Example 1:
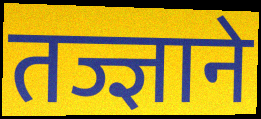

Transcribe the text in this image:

तज्ज्ञाने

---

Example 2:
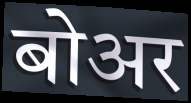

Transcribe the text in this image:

बोअर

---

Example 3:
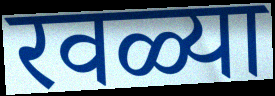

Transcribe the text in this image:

रवळ्या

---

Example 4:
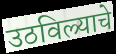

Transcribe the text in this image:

उठविल्याचे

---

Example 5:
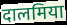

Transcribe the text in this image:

दालमिया